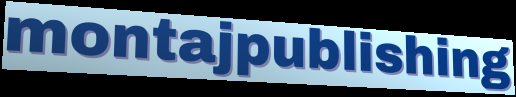
montajpublishing